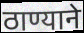
ठाण्याने